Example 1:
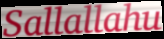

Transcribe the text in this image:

Sallallahu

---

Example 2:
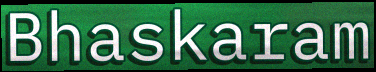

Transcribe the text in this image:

Bhaskaram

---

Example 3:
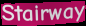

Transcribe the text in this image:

Stairway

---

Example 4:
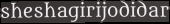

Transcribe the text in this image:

sheshagirijodidar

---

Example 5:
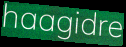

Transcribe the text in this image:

haagidre